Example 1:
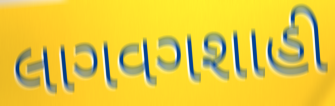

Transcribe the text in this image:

લાગવગશાહી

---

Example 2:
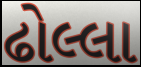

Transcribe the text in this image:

ઢોલ્લા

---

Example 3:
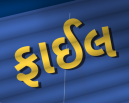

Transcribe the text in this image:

ફાઈલ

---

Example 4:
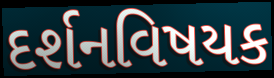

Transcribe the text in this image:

દર્શનવિષયક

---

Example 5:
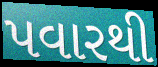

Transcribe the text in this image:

પવારથી